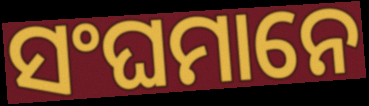
ସଂଘମାନେ